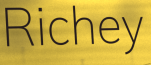
Richey